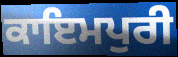
ਕਾਇਮਪੁਰੀ